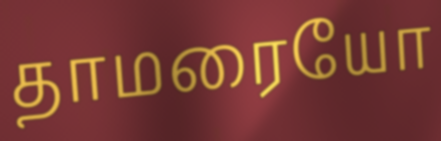
தாமரையோ